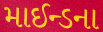
માઈન્ડના